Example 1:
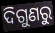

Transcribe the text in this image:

ଦିଗୁଣରୁ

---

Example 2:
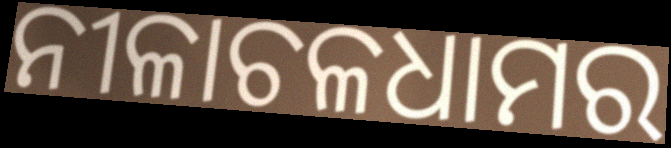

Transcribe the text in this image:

ନୀଳାଚଳଧାମର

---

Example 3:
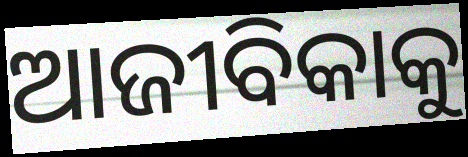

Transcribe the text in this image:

ଆଜୀବିକାକୁ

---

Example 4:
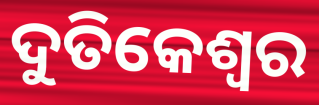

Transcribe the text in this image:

ଦୁତିକେଶ୍ୱର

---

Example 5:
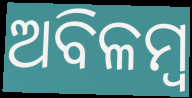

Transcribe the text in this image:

ଅବିଳମ୍ବ